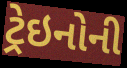
ટ્રેઇનોની